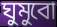
ঘুমুবো